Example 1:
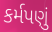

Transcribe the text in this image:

કર્મપણું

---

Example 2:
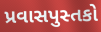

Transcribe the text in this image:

પ્રવાસપુસ્તકો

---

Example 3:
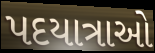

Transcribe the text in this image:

પદયાત્રાઓ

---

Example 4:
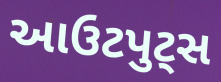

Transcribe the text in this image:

આઉટપુટ્સ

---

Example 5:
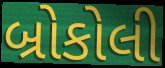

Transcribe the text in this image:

બ્રોકોલી